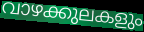
വാഴക്കുലകളും